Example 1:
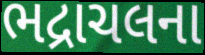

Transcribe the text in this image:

ભદ્રાચલના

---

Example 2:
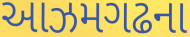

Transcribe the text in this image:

આઝમગઢના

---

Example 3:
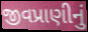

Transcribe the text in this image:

જીવપ્રાણીનું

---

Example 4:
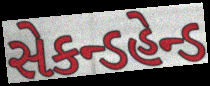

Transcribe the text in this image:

સેકન્ડહેન્ડ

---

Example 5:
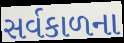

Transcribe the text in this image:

સર્વકાળના